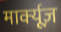
मार्क्यूज़